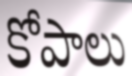
కోపాలు